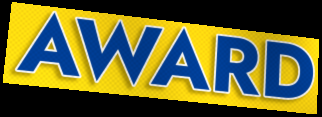
AWARD